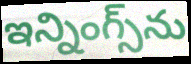
ఇన్నింగ్స్‌ను